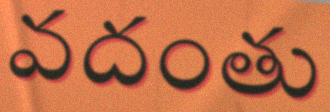
వదంతు